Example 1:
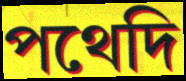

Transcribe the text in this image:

পথেদি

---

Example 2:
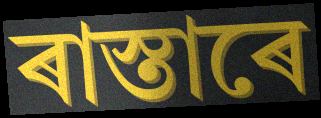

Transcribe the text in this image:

ৰাস্তাৰে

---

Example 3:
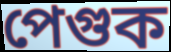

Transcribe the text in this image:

পেগুক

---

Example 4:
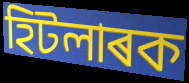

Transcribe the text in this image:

হিটলাৰক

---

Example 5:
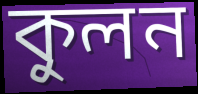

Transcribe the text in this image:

কুলন